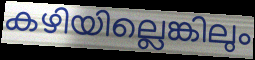
കഴിയില്ലെങ്കിലും